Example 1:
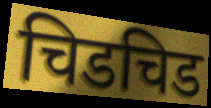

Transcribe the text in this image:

चिडचिड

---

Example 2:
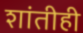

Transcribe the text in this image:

शांतीही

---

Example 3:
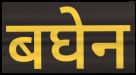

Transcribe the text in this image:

बघेन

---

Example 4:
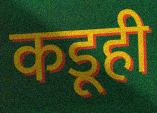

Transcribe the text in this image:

कडूही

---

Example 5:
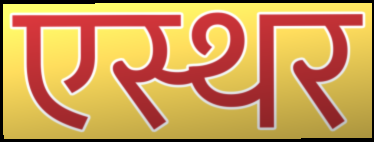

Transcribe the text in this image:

एस्थर